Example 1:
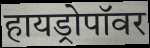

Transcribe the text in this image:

हायड्रोपॉवर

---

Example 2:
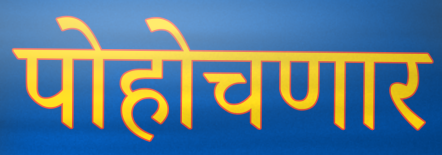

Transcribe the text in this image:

पोहोचणार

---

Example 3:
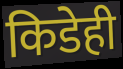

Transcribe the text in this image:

किडेही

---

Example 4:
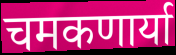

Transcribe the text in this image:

चमकणार्या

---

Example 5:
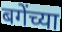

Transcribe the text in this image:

बगेंच्या